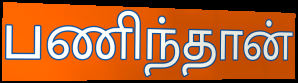
பணிந்தான்